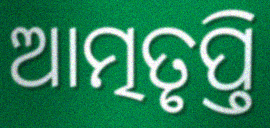
ଆତ୍ମତୃପ୍ତି